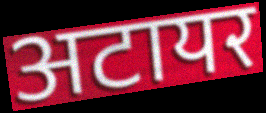
अटायर